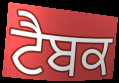
ਟੈਬਕ